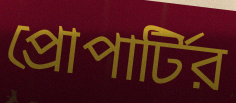
প্রোপার্টির